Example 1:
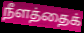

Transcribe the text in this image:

நீளத்தைக்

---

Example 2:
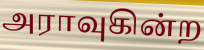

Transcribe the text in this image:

அராவுகின்ற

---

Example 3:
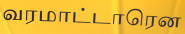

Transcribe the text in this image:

வரமாட்டாரென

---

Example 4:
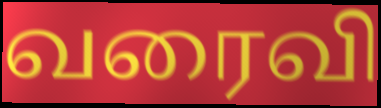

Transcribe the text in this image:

வரைவி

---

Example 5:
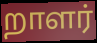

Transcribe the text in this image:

றாளர்